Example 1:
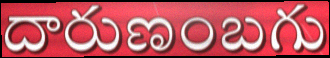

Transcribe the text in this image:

దారుణంబగు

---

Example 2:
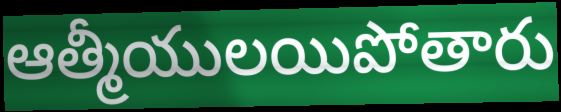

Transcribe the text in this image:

ఆత్మీయులయిపోతారు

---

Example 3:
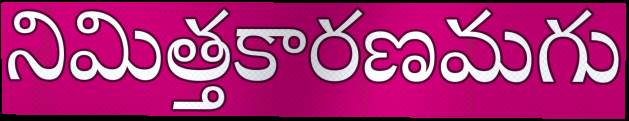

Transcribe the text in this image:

నిమిత్తకారణమగు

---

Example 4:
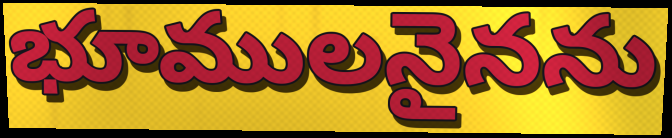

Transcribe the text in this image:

భూములనైనను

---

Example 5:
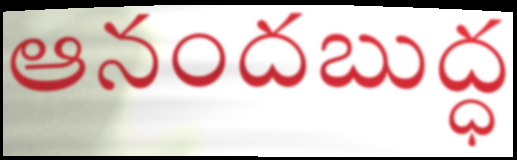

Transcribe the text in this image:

ఆనందబుద్ధ